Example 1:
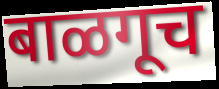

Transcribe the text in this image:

बाळगूच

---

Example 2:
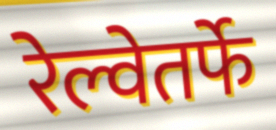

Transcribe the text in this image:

रेल्वेतर्फे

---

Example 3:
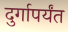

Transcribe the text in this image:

दुर्गापर्यंत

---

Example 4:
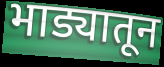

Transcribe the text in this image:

भाड्यातून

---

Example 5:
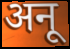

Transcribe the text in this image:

अनू